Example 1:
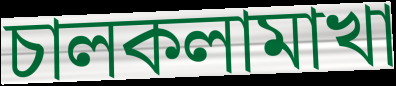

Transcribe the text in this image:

চালকলামাখা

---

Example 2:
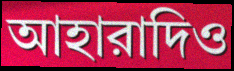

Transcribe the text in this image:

আহারাদিও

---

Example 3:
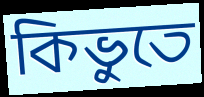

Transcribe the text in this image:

কিভুতে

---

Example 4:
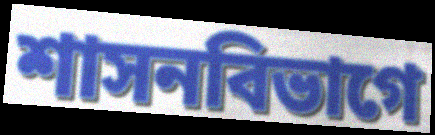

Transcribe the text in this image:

শাসনবিভাগে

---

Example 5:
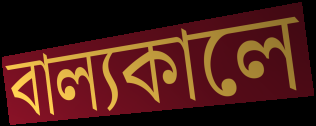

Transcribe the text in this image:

বাল্যকালে